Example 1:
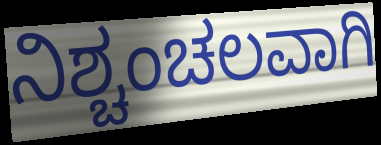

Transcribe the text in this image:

ನಿಶ್ಚಂಚಲವಾಗಿ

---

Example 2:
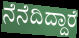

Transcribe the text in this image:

ನೆನೆದಿದ್ದಾರೆ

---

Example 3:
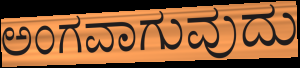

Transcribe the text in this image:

ಅಂಗವಾಗುವುದು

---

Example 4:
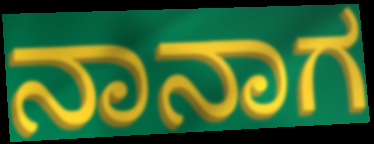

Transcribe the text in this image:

ನಾನಾಗ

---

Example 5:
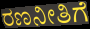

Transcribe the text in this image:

ರಣನೀತಿಗೆ